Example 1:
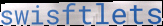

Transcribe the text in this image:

swisftlets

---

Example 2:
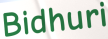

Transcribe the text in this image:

Bidhuri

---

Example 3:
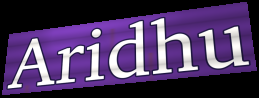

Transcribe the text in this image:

Aridhu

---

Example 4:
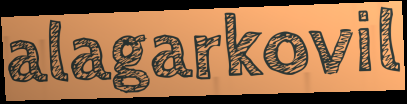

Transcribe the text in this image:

alagarkovil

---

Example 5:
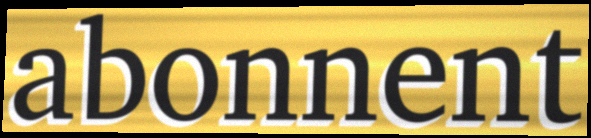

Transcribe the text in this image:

abonnent